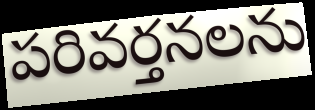
పరివర్తనలను